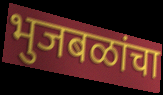
भुजबळांचा